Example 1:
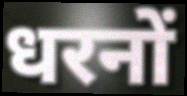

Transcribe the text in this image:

धरनों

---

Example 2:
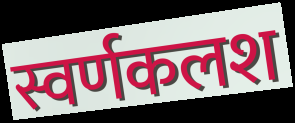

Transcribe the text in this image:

स्वर्णकलश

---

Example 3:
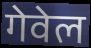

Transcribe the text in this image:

गेवेल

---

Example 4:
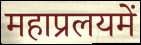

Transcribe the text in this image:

महाप्रलयमें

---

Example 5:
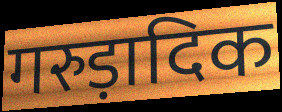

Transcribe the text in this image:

गरुड़ादिक